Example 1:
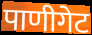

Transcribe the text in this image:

पाणीगेट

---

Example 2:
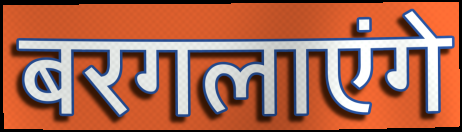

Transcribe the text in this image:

बरगलाएंगे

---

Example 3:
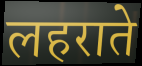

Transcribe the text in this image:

लहराते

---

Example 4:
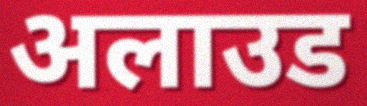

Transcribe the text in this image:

अलाउड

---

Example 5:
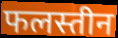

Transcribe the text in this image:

फलस्तीन